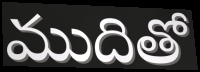
ముదితో